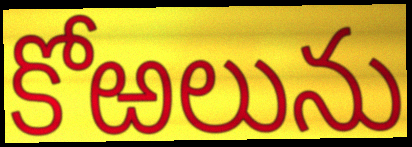
కోఱలును